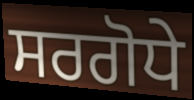
ਸਰਗੋਧੇ